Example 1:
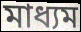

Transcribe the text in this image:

মাধ্যম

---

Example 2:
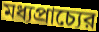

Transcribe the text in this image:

মধ্যপ্রাচ্যের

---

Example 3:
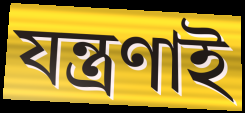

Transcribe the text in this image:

যন্ত্রণাই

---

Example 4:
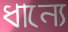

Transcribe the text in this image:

ধান্যে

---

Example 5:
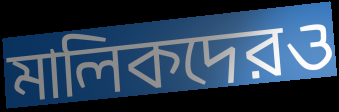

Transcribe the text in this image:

মালিকদেরও